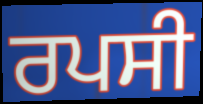
ਰਪਸੀ